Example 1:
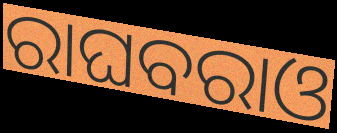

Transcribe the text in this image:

ରାଘବରାଓ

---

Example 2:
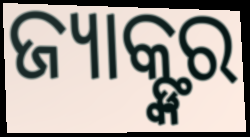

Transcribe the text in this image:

ଜ୍ୟାକ୍ଙ୍କର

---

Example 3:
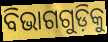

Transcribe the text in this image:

ବିଭାଗଗୁଡ଼ିକୁ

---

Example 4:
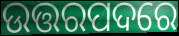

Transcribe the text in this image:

ଉତ୍ତରପଦରେ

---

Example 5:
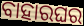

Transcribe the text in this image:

ବାହାରଘର